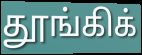
தூங்கிக்